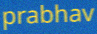
prabhav